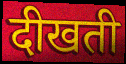
दीखती